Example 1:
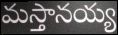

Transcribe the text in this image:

మస్తానయ్య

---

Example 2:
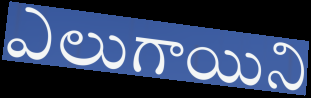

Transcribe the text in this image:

ఎలుగాయిని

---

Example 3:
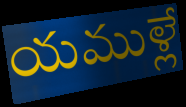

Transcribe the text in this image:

యముళ్లే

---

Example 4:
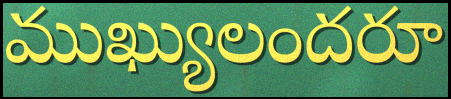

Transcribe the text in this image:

ముఖ్యులందరూ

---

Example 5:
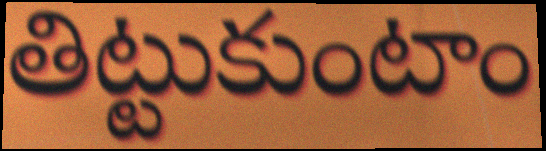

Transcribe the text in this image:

తిట్టుకుంటాం